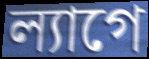
ল্যাগে